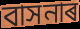
বাসনাৰ